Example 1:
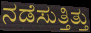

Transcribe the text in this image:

ನಡೆಸುತ್ತಿತ್ತು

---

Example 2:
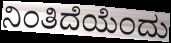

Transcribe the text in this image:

ನಿಂತಿದೆಯೆಂದು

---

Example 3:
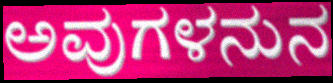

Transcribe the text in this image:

ಅವುಗಳನುನ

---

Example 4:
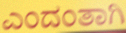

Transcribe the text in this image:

ಎಂದಂತಾಗಿ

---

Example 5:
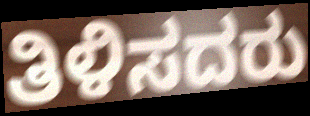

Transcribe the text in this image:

ತಿಳಿಸದರು